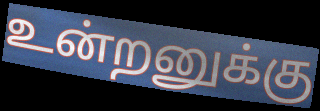
உன்றனுக்கு